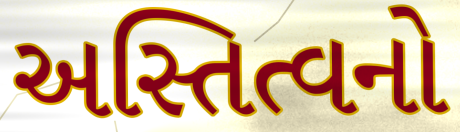
અસ્તિત્વનો